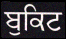
ਬੁਕਿਟ